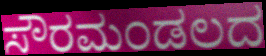
ಸೌರಮಂಡಲದ